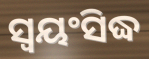
ସ୍ୱୟଂସିଦ୍ଧ